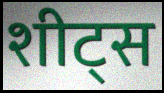
शीट्स